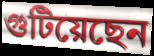
গুটিয়েছেন